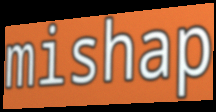
mishap